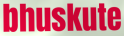
bhuskute